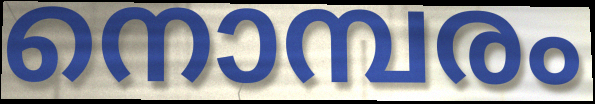
നൊമ്പരം